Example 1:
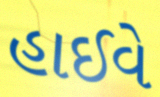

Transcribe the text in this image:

હાઈવે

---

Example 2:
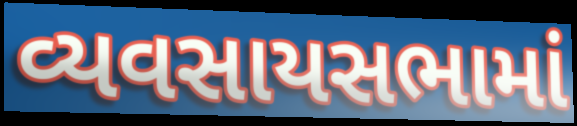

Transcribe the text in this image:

વ્યવસાયસભામાં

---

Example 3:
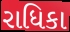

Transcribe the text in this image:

રાધિકા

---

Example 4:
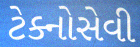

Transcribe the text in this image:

ટેક્નોસેવી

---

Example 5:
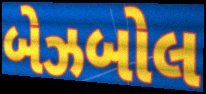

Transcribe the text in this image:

બેઝબોલ